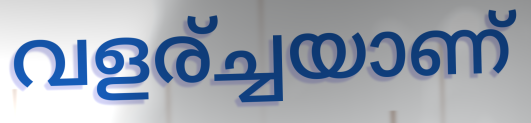
വളര്ച്ചയാണ്